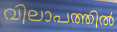
വിലാപത്തിൽ